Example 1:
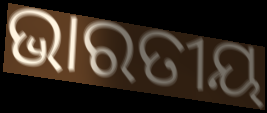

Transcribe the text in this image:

ଭାରତୀୟ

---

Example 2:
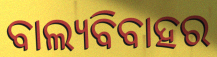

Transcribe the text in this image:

ବାଲ୍ୟବିବାହର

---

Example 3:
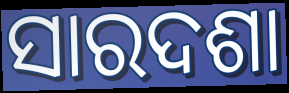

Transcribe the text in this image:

ସାରଦଶା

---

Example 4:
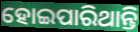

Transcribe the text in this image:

ହୋଇପାରିଥାନ୍ତି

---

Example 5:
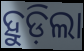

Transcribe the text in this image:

ହୁଡ଼ିଲା